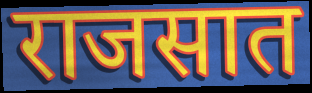
राजसात